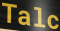
Talc